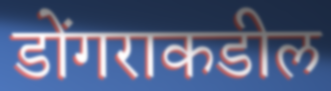
डोंगराकडील